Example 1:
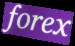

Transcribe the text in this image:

forex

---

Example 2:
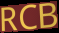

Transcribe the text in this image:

RCB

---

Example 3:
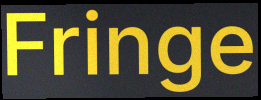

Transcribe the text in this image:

Fringe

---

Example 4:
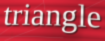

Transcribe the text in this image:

triangle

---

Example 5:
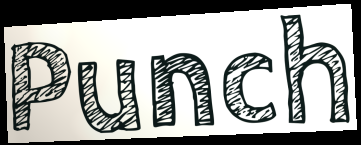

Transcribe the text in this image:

Punch